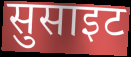
सुसाइट